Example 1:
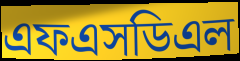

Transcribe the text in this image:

এফএসডিএল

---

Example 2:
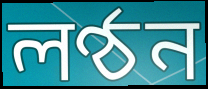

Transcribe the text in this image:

লণ্ঠন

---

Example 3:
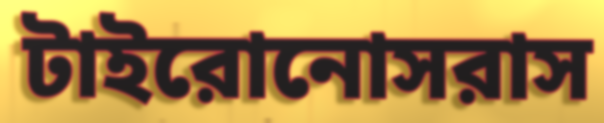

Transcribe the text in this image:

টাইরোনোসরাস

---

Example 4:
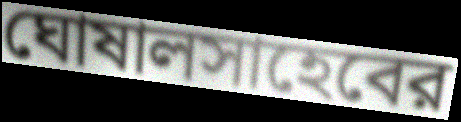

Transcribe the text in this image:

ঘোষালসাহেবের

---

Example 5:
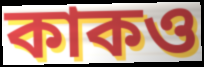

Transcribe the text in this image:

কাকও